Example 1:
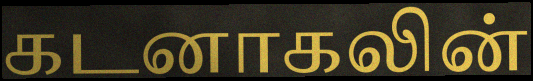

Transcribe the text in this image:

கடனாகலின்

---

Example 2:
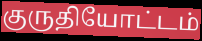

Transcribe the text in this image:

குருதியோட்டம்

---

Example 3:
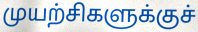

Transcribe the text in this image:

முயற்சிகளுக்குச்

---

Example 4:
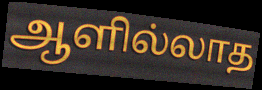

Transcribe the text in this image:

ஆளில்லாத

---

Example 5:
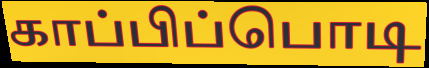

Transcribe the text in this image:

காப்பிப்பொடி